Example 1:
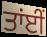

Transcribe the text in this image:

ਤਾਂਈਂ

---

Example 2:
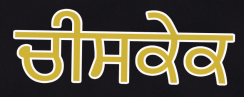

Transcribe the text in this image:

ਚੀਸਕੇਕ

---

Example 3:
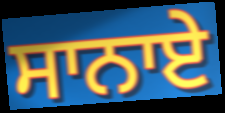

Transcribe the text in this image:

ਸਾਨਾਏ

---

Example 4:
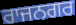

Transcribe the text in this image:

ਰਾਜਨਗਰ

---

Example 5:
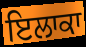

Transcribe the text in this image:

ਇਲਾਕਾ